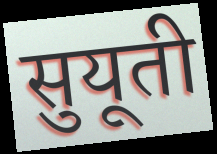
सुयूती